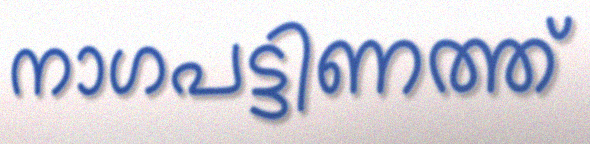
നാഗപട്ടിണത്ത്